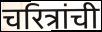
चरित्रांची